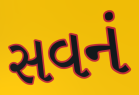
સવનં